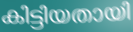
കിട്ടിയതായി